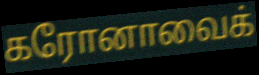
கரோனாவைக்